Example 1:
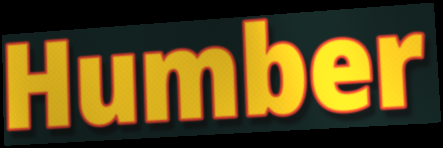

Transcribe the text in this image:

Humber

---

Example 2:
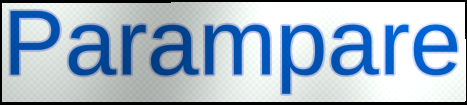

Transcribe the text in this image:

Parampare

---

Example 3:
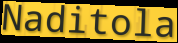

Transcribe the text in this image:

Naditola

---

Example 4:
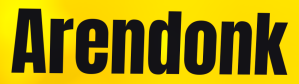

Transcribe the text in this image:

Arendonk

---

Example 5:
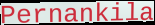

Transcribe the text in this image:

Pernankila